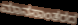
ಮಾನಸಾಂತರದ